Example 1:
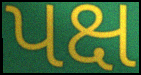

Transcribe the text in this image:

પક્ષ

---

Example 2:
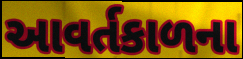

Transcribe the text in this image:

આવર્તકાળના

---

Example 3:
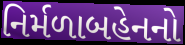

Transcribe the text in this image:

નિર્મળાબહેનનો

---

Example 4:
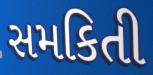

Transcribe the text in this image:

સમકિતી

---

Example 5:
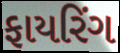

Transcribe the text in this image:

ફાયરિંગ